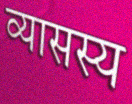
व्यासस्य